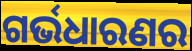
ଗର୍ଭଧାରଣର